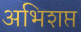
अभिशप्त